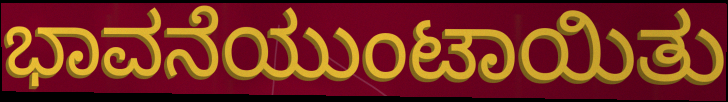
ಭಾವನೆಯುಂಟಾಯಿತು